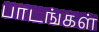
பாடங்கள்